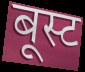
बूस्ट